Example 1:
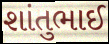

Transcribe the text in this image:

શાંતુભાઈ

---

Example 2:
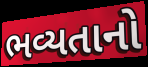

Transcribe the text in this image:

ભવ્યતાનો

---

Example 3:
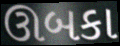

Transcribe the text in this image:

ઊબકા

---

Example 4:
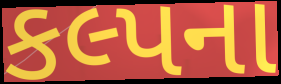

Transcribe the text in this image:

કલ્પના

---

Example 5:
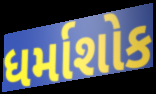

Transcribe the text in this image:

ધર્માશોક